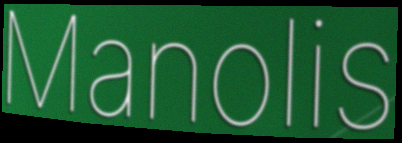
Manolis